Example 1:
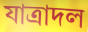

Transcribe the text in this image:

যাত্রাদল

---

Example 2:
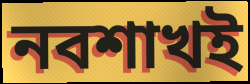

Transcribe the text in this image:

নবশাখই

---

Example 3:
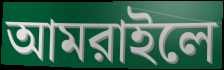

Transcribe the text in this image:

আমরাইলে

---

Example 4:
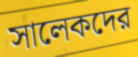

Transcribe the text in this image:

সালেকদের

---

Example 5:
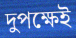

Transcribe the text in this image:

দুপক্ষেই